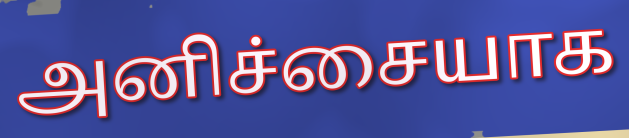
அனிச்சையாக